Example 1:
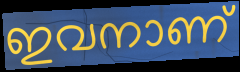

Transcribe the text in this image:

ഇവനാണ്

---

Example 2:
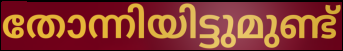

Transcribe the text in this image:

തോന്നിയിട്ടുമുണ്ട്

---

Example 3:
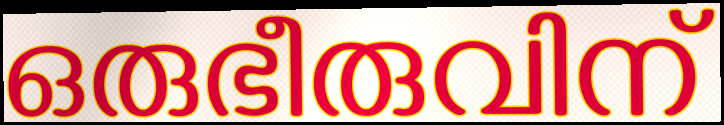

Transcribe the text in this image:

ഒരുഭീരുവിന്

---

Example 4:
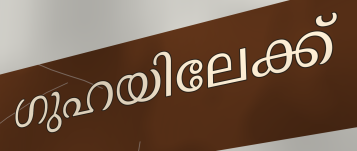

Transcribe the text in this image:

ഗുഹയിലേക്ക്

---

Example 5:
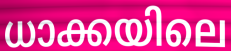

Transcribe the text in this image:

ധാക്കയിലെ